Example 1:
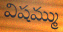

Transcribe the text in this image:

విషమ్ము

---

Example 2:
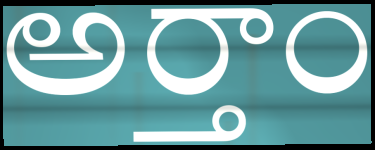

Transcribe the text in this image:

అర్తాం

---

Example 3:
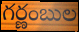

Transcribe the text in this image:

గర్ణంబుల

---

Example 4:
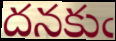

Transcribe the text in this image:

దనకుఁ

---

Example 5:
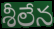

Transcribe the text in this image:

శీలేన